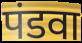
पंडवा